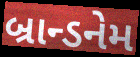
બ્રાન્ડનેમ